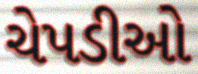
ચેપડીઓ